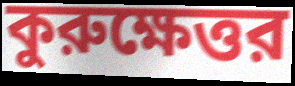
কুরুক্ষেত্তর